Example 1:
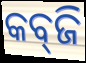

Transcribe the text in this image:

କବ୍‍ଜି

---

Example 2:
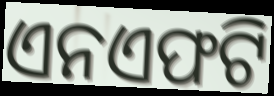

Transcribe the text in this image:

ଏନଏଫଟି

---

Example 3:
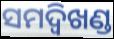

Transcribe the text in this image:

ସମଦ୍ବିଖଣ୍ଡ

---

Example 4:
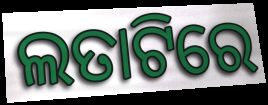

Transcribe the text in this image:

ଲତାଟିରେ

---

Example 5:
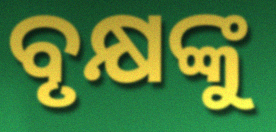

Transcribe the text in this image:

ବୃକ୍ଷଙ୍କୁ